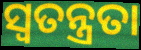
ସ୍ବତନ୍ତ୍ରତା